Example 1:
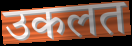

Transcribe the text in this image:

उकलत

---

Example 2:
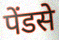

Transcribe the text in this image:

पेंडसे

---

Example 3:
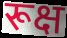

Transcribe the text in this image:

रूक्ष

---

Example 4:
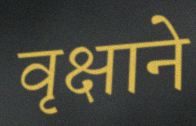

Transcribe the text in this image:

वृक्षाने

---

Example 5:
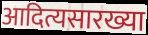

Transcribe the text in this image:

आदित्यसारख्या